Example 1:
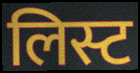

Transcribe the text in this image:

लिस्‍ट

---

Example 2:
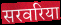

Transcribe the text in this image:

सरवरिया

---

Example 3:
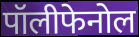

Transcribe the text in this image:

पॉलीफेनोल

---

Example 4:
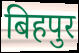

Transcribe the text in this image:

बिहपुर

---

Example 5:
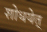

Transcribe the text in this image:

शोधयेत्